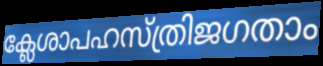
ക്ലേശാപഹസ്ത്രിജഗതാം